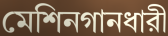
মেশিনগানধারী